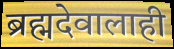
ब्रह्मदेवालाही